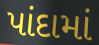
પાંદામાં